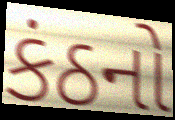
કંઠનો